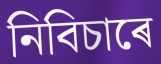
নিবিচাৰে